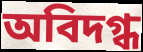
অবিদগ্ধ